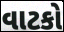
વાટકો